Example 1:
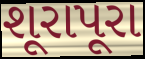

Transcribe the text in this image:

શૂરાપૂરા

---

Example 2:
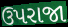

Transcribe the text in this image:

ઉપરાજા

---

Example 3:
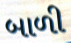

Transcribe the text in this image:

બાળી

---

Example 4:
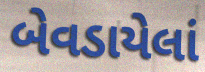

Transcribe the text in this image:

બેવડાયેલાં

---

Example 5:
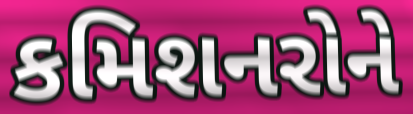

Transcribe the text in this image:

કમિશનરોને